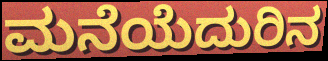
ಮನೆಯೆದುರಿನ